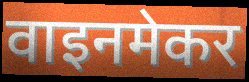
वाइनमेकर